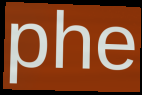
phe